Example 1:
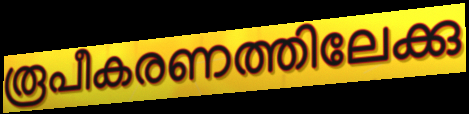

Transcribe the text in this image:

രൂപീകരണത്തിലേക്കു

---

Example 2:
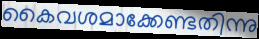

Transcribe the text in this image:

കൈവശമാക്കേണ്ടതിന്നു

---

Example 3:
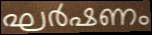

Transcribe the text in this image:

ഘർഷണം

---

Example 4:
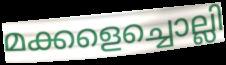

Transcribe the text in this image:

മക്കളെച്ചൊല്ലി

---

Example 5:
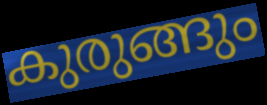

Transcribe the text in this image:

കുരുങ്ങും